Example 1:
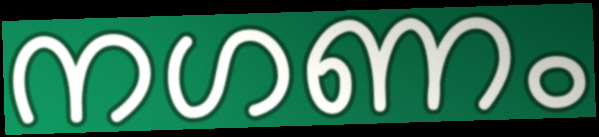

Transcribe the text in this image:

നഗണം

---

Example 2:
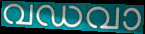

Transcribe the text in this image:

വഡവാ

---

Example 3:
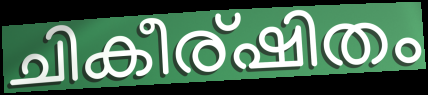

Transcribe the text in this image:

ചികീര്ഷിതം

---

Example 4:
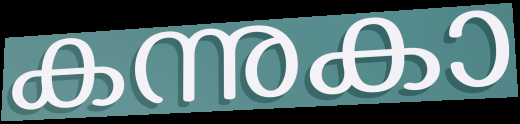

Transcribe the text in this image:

കന്നുകാ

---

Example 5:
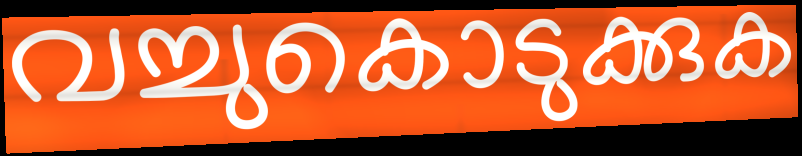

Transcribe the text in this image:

വച്ചുകൊടുക്കുക